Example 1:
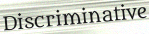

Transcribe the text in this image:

Discriminative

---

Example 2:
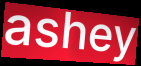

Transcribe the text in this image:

ashey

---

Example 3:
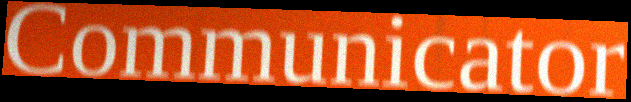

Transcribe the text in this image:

Communicator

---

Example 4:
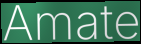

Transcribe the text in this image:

Amate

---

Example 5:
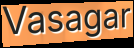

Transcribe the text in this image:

Vasagar